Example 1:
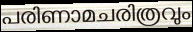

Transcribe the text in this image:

പരിണാമചരിത്രവും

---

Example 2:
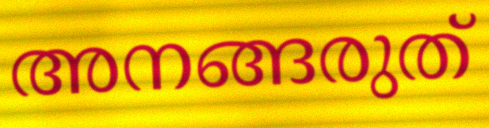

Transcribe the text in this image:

അനങ്ങരുത്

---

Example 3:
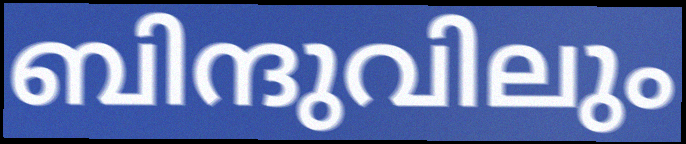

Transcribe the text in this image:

ബിന്ദുവിലും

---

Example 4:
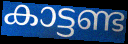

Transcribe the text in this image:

കാട്ടണ്ട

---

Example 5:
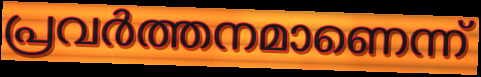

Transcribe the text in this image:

പ്രവർത്തനമാണെന്ന്